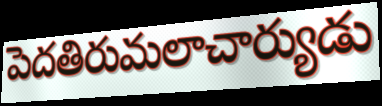
పెదతిరుమలాచార్యుడు